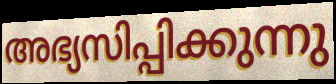
അഭ്യസിപ്പിക്കുന്നു